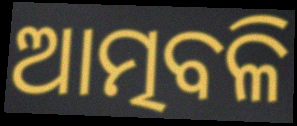
ଆତ୍ମବଳି